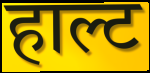
हाल्ट